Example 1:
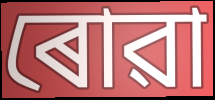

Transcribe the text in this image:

ৰোৱা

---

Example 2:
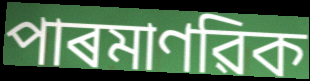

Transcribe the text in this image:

পাৰমাণৱিক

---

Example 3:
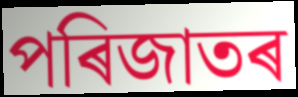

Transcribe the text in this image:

পৰিজাতৰ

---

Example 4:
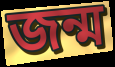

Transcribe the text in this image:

জন্ম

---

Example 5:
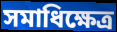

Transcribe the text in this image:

সমাধিক্ষেত্ৰ